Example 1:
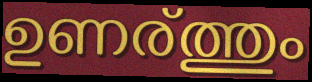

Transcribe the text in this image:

ഉണര്ത്തും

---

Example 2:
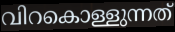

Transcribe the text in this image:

വിറകൊള്ളുന്നത്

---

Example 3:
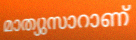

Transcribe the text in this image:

മാത്യുസാറാണ്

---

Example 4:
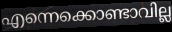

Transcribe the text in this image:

എന്നെക്കൊണ്ടാവില്ല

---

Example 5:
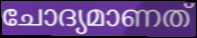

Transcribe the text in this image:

ചോദ്യമാണത്